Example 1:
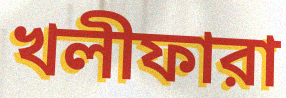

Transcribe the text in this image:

খলীফারা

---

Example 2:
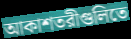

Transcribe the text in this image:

আকাশতরীগুলিতে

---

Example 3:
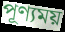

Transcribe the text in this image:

পূণ্যময়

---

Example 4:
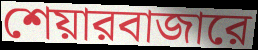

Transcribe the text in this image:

শেয়ারবাজারে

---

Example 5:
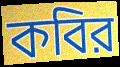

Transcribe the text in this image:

কবির